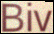
Biv